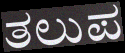
ತಲುಪ